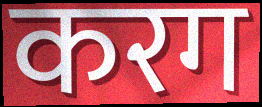
करग